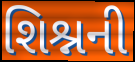
શિશ્નની